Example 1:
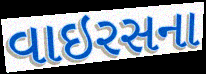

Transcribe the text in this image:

વાઇરસના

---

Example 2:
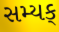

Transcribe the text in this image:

સમ્યક્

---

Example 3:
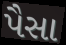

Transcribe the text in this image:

પૈસા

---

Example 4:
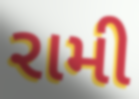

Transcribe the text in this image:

રામી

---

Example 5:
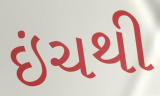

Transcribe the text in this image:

ઇંચથી